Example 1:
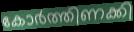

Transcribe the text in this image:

കോർത്തിണക്കി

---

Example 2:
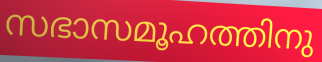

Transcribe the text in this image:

സഭാസമൂഹത്തിനു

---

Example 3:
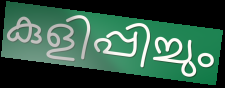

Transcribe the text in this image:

കുളിപ്പിച്ചും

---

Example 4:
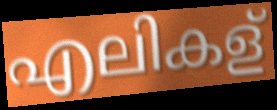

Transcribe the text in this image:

എലികള്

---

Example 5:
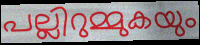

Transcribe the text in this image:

പല്ലിറുമ്മുകയും